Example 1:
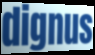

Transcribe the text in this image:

dignus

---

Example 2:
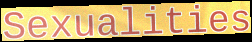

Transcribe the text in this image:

Sexualities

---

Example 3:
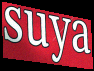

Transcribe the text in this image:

suya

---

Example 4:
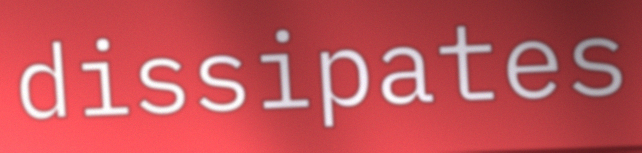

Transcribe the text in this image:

dissipates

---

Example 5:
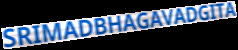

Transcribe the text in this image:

SRIMADBHAGAVADGITA